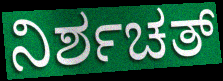
ನಿರ್ಶಚತ್